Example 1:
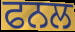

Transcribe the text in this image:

ਫਨਲ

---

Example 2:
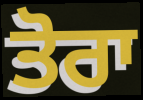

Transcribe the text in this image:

ਤੋਰਾ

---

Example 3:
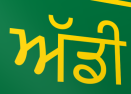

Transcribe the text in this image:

ਅੱਡੀ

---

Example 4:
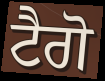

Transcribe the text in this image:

ਟੈਗੋ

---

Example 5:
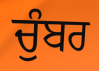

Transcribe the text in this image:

ਚੁੰਬਰ